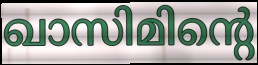
ഖാസിമിന്റെ